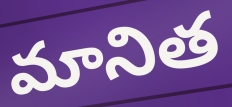
మానిత